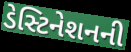
ડેસ્ટિનેશનની